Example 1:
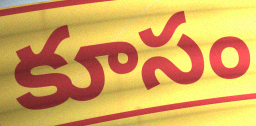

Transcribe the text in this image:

కూసం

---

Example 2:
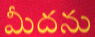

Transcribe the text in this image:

మీదను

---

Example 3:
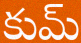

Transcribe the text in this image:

కుమ్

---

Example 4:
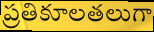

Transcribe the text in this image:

ప్రతికూలతలుగా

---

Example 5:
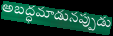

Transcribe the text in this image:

అబద్ధమాడునప్పుడు